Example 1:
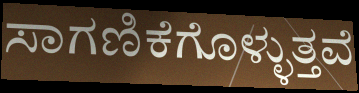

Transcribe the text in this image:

ಸಾಗಣಿಕೆಗೊಳ್ಳುತ್ತವೆ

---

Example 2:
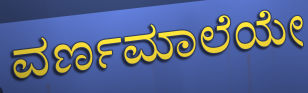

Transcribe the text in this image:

ವರ್ಣಮಾಲೆಯೇ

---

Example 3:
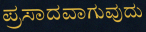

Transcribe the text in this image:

ಪ್ರಸಾದವಾಗುವುದು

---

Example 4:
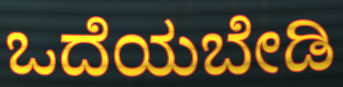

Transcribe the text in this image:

ಒದೆಯಬೇಡಿ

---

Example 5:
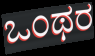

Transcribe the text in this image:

ಒಂಥರ